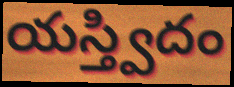
యస్త్విదం